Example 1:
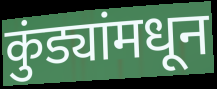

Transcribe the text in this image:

कुंड्यांमधून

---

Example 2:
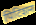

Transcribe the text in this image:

पिटिशन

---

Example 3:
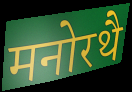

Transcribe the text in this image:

मनोरथै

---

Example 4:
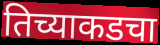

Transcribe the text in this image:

तिच्याकडचा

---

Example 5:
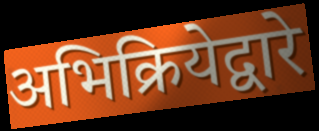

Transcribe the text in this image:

अभिक्रियेद्वारे